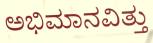
ಅಭಿಮಾನವಿತ್ತು